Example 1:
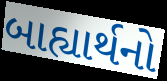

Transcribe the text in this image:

બાહ્યાર્થનો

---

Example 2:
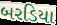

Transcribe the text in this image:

બરડિયા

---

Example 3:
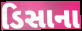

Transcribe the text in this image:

ડિસાના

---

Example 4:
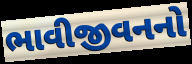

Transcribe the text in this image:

ભાવીજીવનનો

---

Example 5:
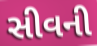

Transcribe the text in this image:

સીવની